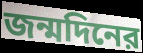
জন্মদিনের